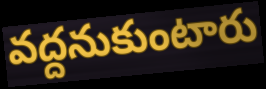
వద్దనుకుంటారు